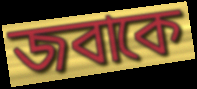
জবাকে